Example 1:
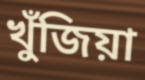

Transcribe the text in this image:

খুঁজিয়া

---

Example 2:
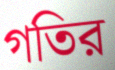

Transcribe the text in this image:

গতির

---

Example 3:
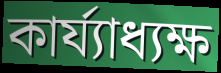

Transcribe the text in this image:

কার্য্যাধ্যক্ষ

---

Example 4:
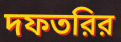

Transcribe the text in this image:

দফতরির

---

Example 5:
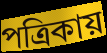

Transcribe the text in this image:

পত্রিকায়